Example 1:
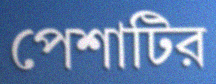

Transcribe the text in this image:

পেশাটির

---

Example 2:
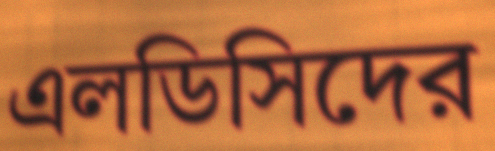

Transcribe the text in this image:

এলডিসিদের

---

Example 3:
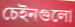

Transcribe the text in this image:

চেইনগুলো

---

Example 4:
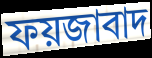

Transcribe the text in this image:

ফয়জাবাদ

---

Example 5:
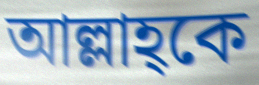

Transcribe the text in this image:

আল্লাহ্কে